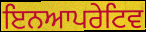
ਇਨਆਪਰੇਟਿਵ